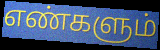
எண்களும்